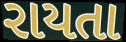
રાયતા